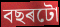
বছৰটো